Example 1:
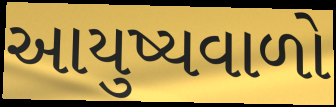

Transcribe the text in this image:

આયુષ્યવાળો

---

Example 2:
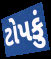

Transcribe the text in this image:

ટોપકું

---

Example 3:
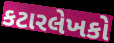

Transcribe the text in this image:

કટારલેખકો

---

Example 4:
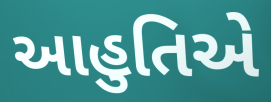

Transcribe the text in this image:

આહુતિએ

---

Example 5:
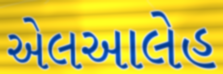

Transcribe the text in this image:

એલઆલેહ